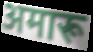
अमारू